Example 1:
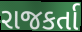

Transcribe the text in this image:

રાજકર્તા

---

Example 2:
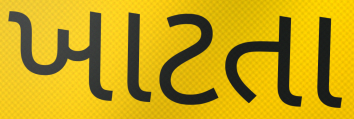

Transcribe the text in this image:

ખાટતા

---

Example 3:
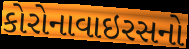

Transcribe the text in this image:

કોરોનાવાઇરસનો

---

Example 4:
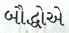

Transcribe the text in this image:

બૌદ્ધોએ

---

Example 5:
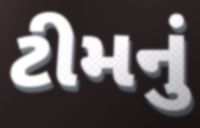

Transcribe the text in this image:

ટીમનું